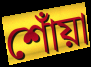
শোঁয়া